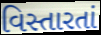
વિસ્તારતાં